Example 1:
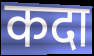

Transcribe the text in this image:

कदा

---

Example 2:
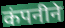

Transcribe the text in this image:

कंपनीने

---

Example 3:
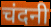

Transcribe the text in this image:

चंदनी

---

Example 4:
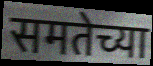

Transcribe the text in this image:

समतेच्या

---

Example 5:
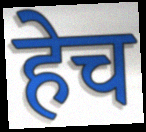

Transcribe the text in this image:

हेच